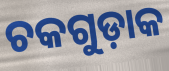
ଚକଗୁଡ଼ାକ